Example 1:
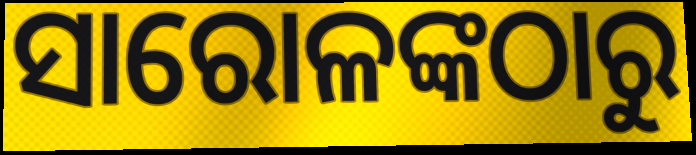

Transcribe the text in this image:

ସାରୋଳଙ୍କଠାରୁ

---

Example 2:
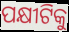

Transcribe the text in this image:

ପକ୍ଷୀଟିକୁ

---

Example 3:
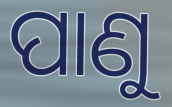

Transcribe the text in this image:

ପାଣୁ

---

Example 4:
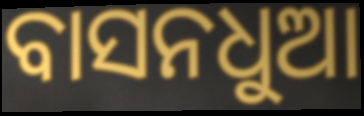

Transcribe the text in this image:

ବାସନଧୁଆ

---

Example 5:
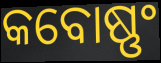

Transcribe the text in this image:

କବୋଷ୍ଣଂ